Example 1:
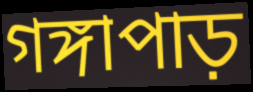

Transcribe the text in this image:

গঙ্গাপাড়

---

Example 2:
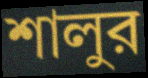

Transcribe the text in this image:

শালুর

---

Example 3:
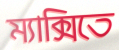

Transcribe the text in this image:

ম্যাক্সিতে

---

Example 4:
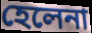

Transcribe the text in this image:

হেলেনা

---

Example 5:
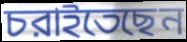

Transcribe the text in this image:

চরাইতেছেন